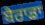
ਬੈਰਾਡਾ